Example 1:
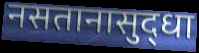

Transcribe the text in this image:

नसतानासुद्धा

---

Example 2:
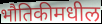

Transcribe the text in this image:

भौतिकीमधील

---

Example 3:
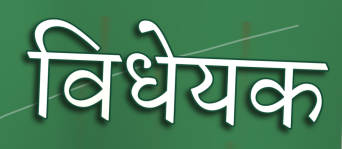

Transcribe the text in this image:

विधेयक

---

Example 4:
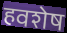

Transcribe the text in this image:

हवशेष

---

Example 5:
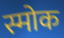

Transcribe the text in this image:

स्मोक